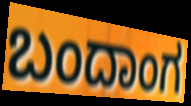
ಬಂದಾಂಗ